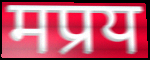
मप्रय